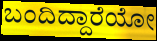
ಬಂದಿದ್ದಾರೆಯೋ